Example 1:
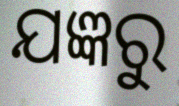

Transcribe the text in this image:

ଯଜ୍ଞରୁ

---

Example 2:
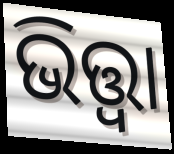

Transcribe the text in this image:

ଭିତ୍ତ୍ୱା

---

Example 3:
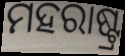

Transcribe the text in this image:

ମହରାଷ୍ଟ୍ର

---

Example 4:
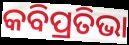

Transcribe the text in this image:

କବିପ୍ରତିଭା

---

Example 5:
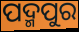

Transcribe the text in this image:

ପଦ୍ମପୁର